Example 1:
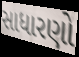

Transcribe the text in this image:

સાધારણો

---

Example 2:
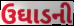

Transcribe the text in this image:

ઉઘાડની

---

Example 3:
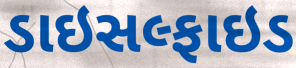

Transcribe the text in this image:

ડાઇસલ્ફાઇડ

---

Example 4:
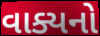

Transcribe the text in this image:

વાક્યનો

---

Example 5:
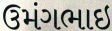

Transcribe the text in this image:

ઉમંગભાઇ